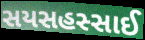
સયસહસ્સાઈ